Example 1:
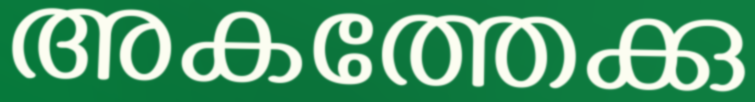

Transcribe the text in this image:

അകത്തേക്കു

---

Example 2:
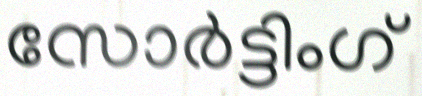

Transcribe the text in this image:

സോർട്ടിംഗ്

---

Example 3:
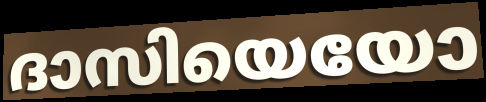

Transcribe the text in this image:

ദാസിയെയോ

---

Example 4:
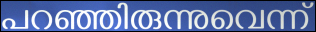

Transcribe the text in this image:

പറഞ്ഞിരുന്നുവെന്ന്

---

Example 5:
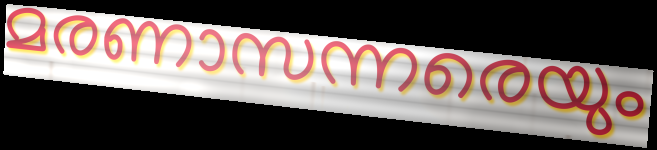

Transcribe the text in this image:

മരണാസന്നരെയും